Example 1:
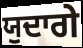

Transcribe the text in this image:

ਯੁਦਾਗੇ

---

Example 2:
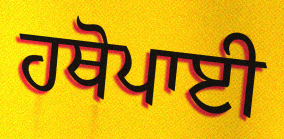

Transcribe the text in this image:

ਹਥੋਪਾਈ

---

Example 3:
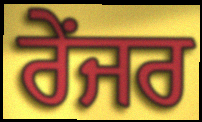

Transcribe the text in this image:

ਰੇਂਜਰ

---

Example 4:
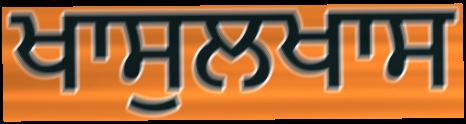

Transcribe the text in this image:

ਖਾਸੁਲਖਾਸ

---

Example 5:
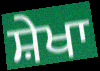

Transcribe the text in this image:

ਸ਼ੇਖਾ